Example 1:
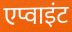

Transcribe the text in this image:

एप्वाइंट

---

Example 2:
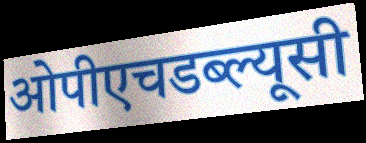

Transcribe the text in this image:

ओपीएचडब्ल्यूसी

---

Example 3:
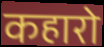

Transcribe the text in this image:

कहारो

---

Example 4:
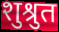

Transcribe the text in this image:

शुश्रुत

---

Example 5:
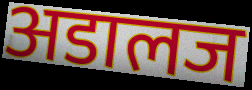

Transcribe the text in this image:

अडालज